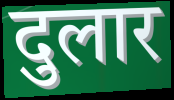
दुलार